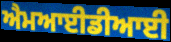
ਐਮਆਈਡੀਆਈ